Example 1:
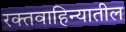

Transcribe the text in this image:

रक्तवाहिन्यातील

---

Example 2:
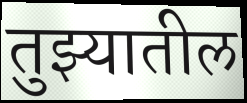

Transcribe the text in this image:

तुझ्यातील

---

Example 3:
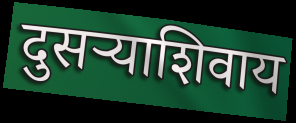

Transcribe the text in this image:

दुसऱ्याशिवाय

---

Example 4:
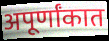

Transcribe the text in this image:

अपूर्णांकात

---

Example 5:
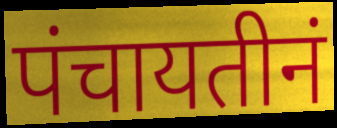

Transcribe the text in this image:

पंचायतीनं